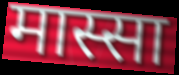
मास्सा